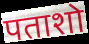
पताशो